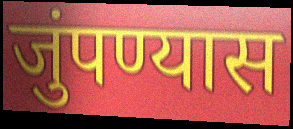
जुंपण्यास